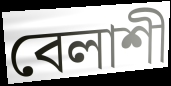
বেলাশী